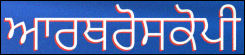
ਆਰਥਰੋਸਕੋਪੀ